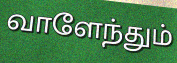
வாளேந்தும்